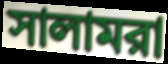
সালামরা